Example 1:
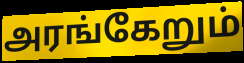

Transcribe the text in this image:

அரங்கேறும்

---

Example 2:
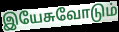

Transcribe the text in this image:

இயேசுவோடும்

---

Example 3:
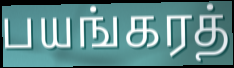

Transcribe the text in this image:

பயங்கரத்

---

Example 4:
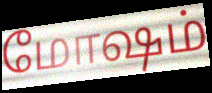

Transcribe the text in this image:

மோஷம்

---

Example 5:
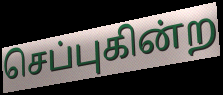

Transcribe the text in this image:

செப்புகின்ற